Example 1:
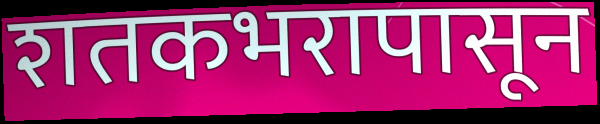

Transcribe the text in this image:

शतकभरापासून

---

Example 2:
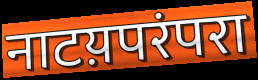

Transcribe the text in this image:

नाटय़परंपरा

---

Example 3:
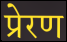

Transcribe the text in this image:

प्रेरण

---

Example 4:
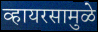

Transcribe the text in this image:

व्हायरसामुळे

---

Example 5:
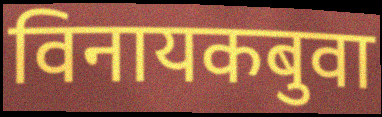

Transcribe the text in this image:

विनायकबुवा